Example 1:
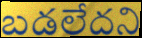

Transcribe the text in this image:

బడలేదని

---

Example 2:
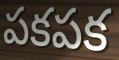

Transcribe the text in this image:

పకపక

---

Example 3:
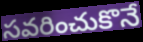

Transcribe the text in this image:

సవరించుకొనే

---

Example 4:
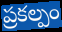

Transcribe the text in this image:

ప్రకల్పం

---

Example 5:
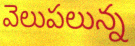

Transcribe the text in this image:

వెలుపలున్న